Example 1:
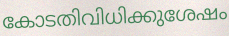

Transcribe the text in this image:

കോടതിവിധിക്കുശേഷം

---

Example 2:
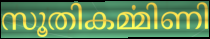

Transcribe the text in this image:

സൂതികൎമ്മിണി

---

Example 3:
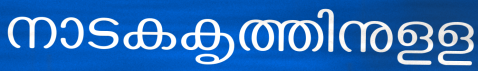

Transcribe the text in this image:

നാടകകൃത്തിനുളള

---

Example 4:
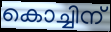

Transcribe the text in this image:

കൊച്ചിന്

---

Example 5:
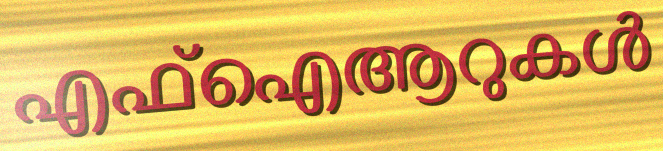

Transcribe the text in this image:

എഫ്ഐആറുകൾ